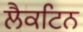
ਲੈਕਟਿਨ